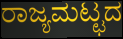
ರಾಜ್ಯಮಟ್ಟದ